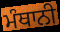
ਮੰਥਾਨੀ